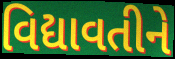
વિદ્યાવતીને